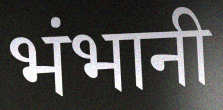
भंभानी